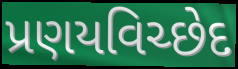
પ્રણયવિચ્છેદ